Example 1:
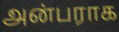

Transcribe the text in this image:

அன்பராக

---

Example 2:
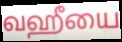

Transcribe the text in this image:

வஹீயை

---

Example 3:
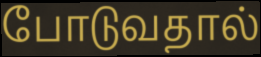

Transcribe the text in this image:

போடுவதால்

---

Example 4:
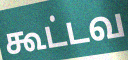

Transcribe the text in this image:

கூட்டவ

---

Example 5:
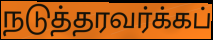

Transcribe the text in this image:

நடுத்தரவர்க்கப்